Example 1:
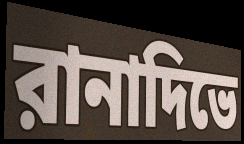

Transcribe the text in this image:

রানাদিভে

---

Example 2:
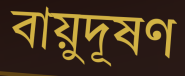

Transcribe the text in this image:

বায়ুদূষণ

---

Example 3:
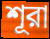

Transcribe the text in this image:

শূরা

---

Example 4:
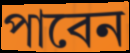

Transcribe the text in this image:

পাবেন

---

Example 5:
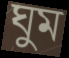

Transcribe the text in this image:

ঘুম